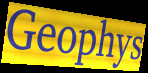
Geophys